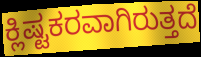
ಕ್ಲಿಷ್ಟಕರವಾಗಿರುತ್ತದೆ